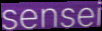
sensei